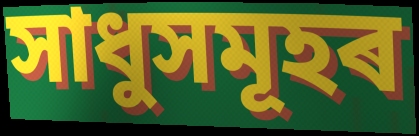
সাধুসমূহৰ